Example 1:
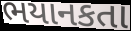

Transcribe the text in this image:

ભયાનકતા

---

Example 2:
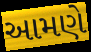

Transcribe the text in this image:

આમણે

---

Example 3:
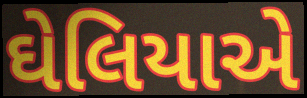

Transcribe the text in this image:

ઘેલિયાએ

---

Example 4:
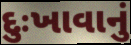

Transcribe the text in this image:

દુઃખાવાનું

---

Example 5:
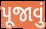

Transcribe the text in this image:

પૂજાવું